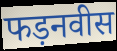
फड़नवीस